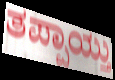
ತಪ್ಪಾಯ್ತು